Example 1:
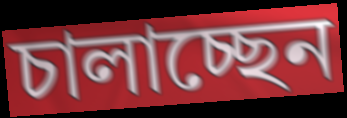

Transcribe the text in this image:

চালাচ্ছেন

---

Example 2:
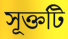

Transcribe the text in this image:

সূক্তটি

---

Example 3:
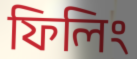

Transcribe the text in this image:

ফিলিং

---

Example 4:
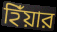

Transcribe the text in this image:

হিঁয়ার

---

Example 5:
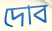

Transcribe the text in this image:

দোব